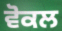
ਵੋਕਲ